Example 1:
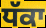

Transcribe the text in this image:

ਧੱਕਾ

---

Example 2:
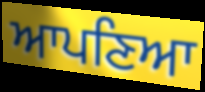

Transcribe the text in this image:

ਆਪਣਿਆ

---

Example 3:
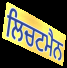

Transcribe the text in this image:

ਲਿਚਟਮੈਨ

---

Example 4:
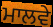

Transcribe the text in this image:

ਮਾਲਵੇ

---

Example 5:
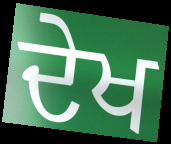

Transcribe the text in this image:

ਦੇਖ